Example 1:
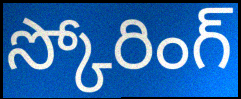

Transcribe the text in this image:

స్కోరింగ్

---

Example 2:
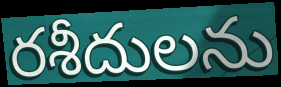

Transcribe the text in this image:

రశీదులను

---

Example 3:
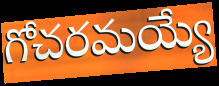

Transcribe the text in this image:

గోచరమయ్యే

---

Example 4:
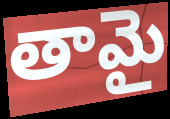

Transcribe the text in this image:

తామై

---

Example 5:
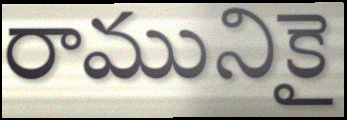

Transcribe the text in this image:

రామునికై